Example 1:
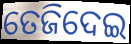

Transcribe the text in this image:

ତେଜିଦେଇ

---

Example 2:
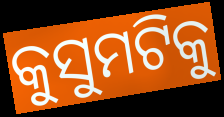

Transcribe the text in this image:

କୁସୁମଟିକୁ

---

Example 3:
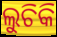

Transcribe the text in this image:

ଲୁଚିକି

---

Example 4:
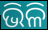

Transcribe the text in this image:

ଭିଳି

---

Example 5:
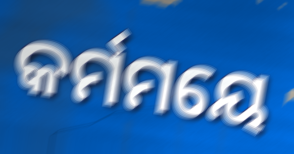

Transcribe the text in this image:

କର୍ମମୟେ